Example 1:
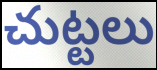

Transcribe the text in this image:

చుట్టలు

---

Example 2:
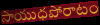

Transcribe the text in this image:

సాయుధపోరాటం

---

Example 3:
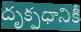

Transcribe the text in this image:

దృక్పధానికీ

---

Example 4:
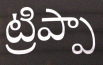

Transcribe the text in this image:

ట్రిప్పా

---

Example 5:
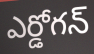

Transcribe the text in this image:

ఎర్డోగన్